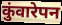
कुंवारेपन